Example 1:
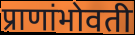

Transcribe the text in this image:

प्राणांभोवती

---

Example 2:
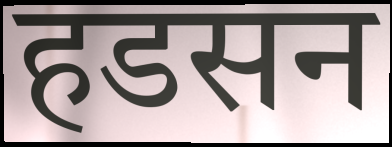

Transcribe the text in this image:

हडसन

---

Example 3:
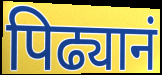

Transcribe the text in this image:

पिढ्यानं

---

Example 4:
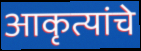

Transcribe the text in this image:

आकृत्यांचे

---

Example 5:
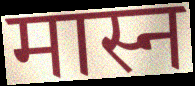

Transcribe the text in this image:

मास्न